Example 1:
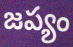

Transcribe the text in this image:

జప్యం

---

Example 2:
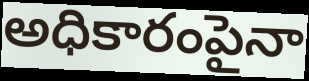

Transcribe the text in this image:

అధికారంపైనా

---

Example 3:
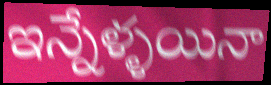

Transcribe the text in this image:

ఇన్నేళ్ళయినా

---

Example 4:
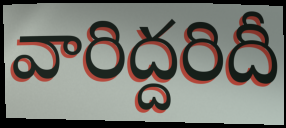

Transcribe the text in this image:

వారిద్దరిదీ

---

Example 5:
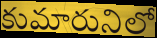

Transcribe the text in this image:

కుమారునిలో